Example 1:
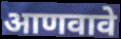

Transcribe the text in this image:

आणवावे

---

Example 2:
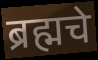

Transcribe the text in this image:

ब्रह्मचे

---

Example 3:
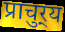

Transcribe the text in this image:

प्राचुर्य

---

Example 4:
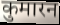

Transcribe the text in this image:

कुमारन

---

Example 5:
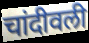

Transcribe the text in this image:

चांदीवली